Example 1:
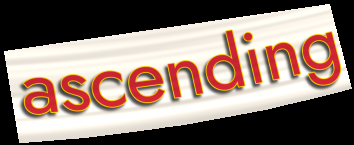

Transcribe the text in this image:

ascending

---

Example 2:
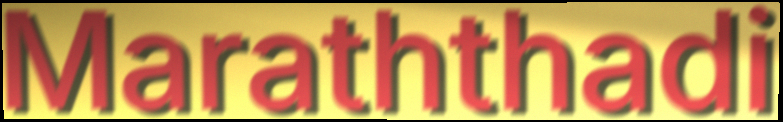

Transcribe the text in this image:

Maraththadi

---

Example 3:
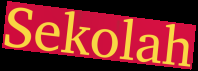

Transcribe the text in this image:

Sekolah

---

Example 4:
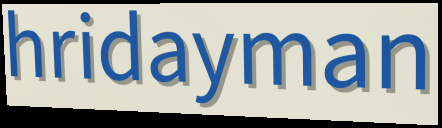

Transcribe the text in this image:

hridayman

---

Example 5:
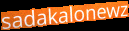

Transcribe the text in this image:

sadakalonewz